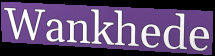
Wankhede